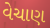
વેચાણ